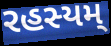
રહસ્યમ્